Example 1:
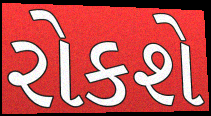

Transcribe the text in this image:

રોકશે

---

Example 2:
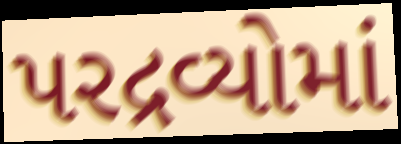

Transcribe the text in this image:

પરદ્રવ્યોમાં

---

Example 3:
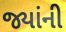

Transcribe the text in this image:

જ્યાંની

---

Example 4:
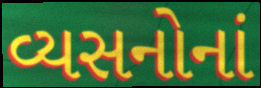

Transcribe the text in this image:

વ્યસનોનાં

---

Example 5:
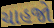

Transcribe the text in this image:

ચાહજો